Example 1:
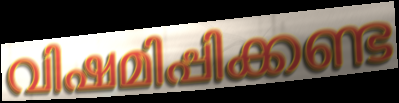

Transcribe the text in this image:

വിഷമിപ്പിക്കണ്ട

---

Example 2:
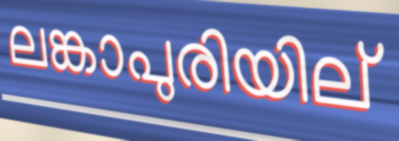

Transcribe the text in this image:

ലങ്കാപുരിയില്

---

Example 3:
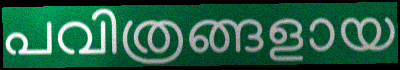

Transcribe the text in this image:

പവിത്രങ്ങളായ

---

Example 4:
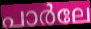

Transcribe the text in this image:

പാർലേ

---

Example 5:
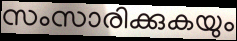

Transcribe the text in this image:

സംസാരിക്കുകയും